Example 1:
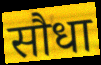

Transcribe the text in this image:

सौधा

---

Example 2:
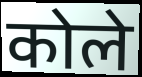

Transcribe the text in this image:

कोले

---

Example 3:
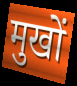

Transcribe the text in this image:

मुखों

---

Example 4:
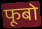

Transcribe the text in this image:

फूबो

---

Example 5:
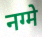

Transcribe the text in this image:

नग्मे